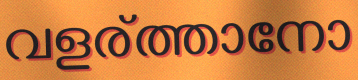
വളര്ത്താനോ